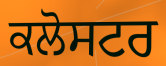
ਕਲੋਸਟਰ